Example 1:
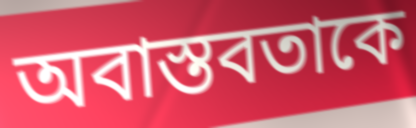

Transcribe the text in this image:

অবাস্তবতাকে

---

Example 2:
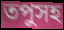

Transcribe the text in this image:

তপুসহ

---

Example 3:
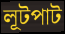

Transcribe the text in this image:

লূটপাট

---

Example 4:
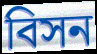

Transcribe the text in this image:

বিসন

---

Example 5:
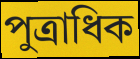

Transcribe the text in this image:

পুত্রাধিক